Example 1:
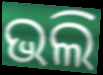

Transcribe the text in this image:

ଭଲି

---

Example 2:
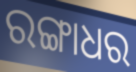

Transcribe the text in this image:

ରଙ୍ଗାଧର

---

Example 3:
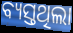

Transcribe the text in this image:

ବ୍ୟସ୍ତଥିଲା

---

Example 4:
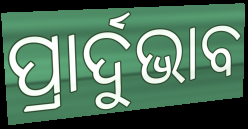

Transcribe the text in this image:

ପ୍ରାର୍ଦୁଭାବ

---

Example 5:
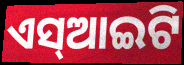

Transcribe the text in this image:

ଏସ୍ଆଇଟି